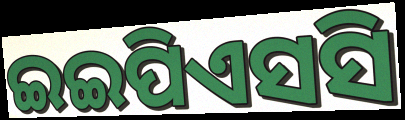
ଇଇପିଏସସି